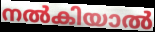
നൽകിയാൽ